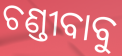
ଚଣ୍ଡୀବାବୁ